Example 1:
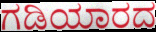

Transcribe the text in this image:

ಗಡಿಯಾರದ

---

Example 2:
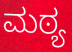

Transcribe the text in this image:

ಮಠ್ಯ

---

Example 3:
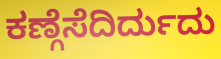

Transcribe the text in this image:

ಕಣ್ಗೆಸೆದಿರ್ದುದು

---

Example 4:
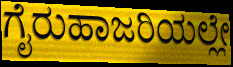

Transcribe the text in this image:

ಗೈರುಹಾಜರಿಯಲ್ಲೇ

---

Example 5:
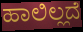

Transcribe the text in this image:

ಹಾಲಿಲ್ಲದೆ